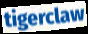
tigerclaw